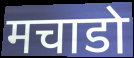
मचाडो